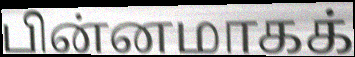
பின்னமாகக்